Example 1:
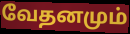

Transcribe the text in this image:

வேதனமும்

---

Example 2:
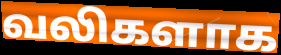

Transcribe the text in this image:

வலிகளாக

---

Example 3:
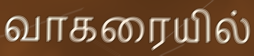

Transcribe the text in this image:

வாகரையில்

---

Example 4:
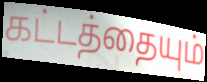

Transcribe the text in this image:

கட்டத்தையும்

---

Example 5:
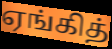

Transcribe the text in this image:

ஏங்கித்